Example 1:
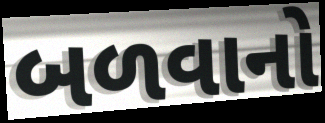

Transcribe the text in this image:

બળવાનો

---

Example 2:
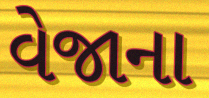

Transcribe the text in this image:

વેજાના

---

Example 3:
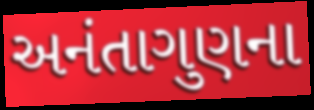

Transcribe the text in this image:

અનંતાગુણના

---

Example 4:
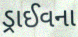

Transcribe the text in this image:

ડ્રાઈવના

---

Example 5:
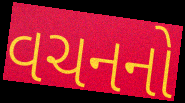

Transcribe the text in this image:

વચનનો